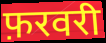
फ़रवरी